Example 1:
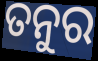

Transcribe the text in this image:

ତନୁର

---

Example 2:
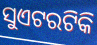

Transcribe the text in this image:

ସୁଏଟରଟିକି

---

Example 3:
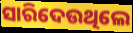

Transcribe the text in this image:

ସାରିଦେଉଥିଲେ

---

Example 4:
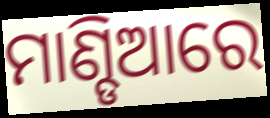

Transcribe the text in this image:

ମାଣ୍ଡିଆରେ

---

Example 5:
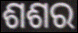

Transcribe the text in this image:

ଶଶର